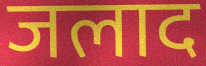
जलाद